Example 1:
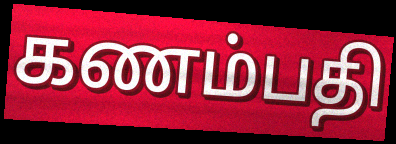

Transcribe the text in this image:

கணம்பதி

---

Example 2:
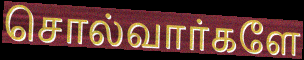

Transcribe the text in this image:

சொல்வார்களே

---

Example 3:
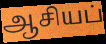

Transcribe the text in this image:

ஆசியப்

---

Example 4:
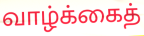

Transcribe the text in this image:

வாழ்க்கைத்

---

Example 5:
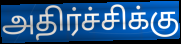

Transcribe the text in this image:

அதிர்ச்சிக்கு